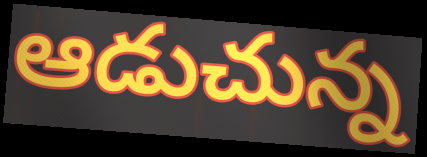
ఆడుచున్న